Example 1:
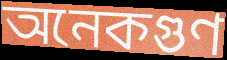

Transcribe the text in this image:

অনেকগুণ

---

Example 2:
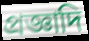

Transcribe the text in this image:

প্রজ্ঞাদি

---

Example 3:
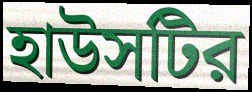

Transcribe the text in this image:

হাউসটির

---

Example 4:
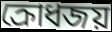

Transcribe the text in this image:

ক্রোধজয়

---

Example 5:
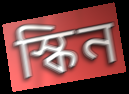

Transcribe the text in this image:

স্কিন